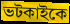
ভটকাইকে